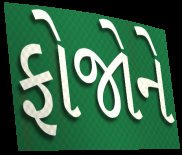
ફોજોને